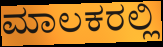
ಮಾಲಕರಲ್ಲಿ